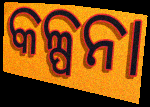
କଳ୍ପନା